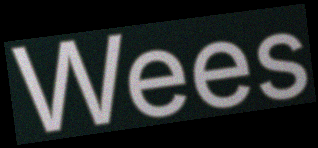
Wees